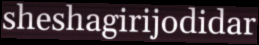
sheshagirijodidar